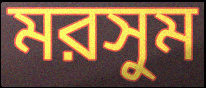
মরসুম